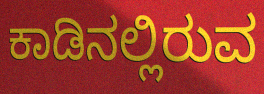
ಕಾಡಿನಲ್ಲಿರುವ